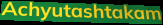
Achyutashtakam